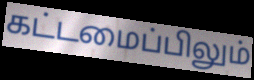
கட்டமைப்பிலும்